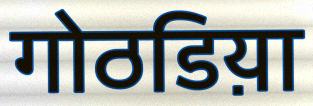
गोठडिय़ा